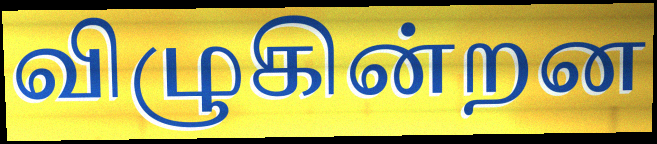
விழுகின்றன